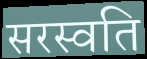
सरस्वति